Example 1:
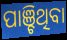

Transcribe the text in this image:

ପାଞ୍ଚିଥିବା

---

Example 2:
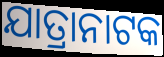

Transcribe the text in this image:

ଯାତ୍ରାନାଟକ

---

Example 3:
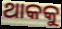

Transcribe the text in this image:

ଥାକକୁ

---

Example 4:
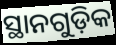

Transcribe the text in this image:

ସ୍ଥାନଗୁଡ଼ିକ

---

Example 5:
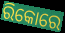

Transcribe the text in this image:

ରିକୋରେ